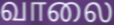
வாலை